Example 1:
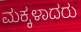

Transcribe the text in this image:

ಮಕ್ಕಳಾದರು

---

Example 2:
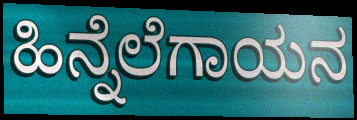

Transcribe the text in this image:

ಹಿನ್ನೆಲೆಗಾಯನ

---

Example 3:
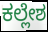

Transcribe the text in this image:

ಕಲ್ಲೇಶ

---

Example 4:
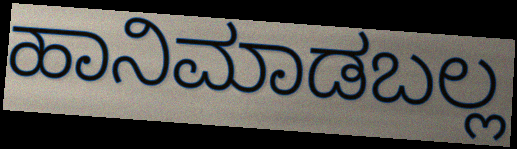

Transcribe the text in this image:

ಹಾನಿಮಾಡಬಲ್ಲ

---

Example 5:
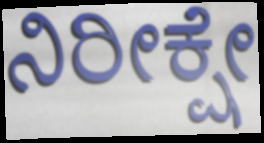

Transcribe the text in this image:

ನಿರೀಕ್ಷೇ